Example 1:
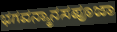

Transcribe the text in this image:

ಭಗವನ್ಮಾನಸಪೂಜಾ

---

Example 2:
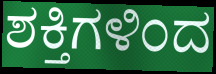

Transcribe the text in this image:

ಶಕ್ತಿಗಳಿಂದ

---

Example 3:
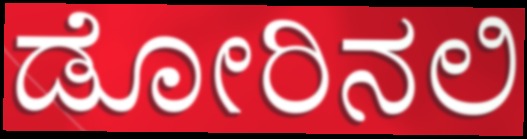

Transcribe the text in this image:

ಡೋರಿನಲಿ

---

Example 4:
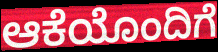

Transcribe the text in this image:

ಆಕೆಯೊಂದಿಗೆ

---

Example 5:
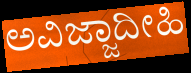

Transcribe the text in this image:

ಅವಿಜ್ಜಾದೀಹಿ